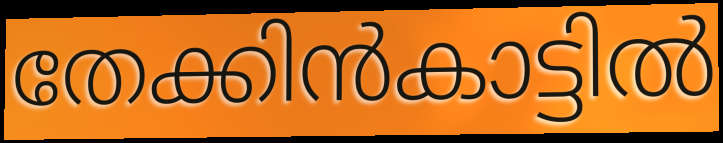
തേക്കിൻകാട്ടിൽ